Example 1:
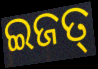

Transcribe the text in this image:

ଇଜତ୍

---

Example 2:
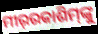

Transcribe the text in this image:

ମୀର୍‌ରକାଶିମ୍‌ଙ୍କୁ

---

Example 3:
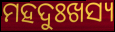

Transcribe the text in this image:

ମହଦୁଃଖସ୍ୟ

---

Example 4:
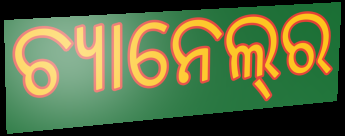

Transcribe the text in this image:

ଚ୍ୟାନେଲ୍‌ର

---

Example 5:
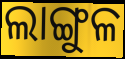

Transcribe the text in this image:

ଲାଙ୍ଗୁଳ